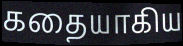
கதையாகிய